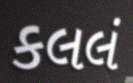
કલલં